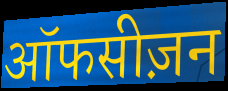
ऑफसीज़न